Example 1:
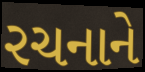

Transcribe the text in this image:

રચનાને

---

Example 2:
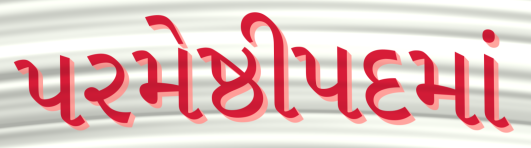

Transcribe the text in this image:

પરમેષ્ઠીપદમાં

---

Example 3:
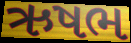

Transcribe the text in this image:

ઋષભ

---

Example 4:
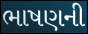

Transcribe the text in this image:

ભાષણની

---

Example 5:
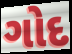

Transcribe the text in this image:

ગોદ